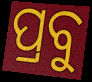
ପ୍ରବୁ